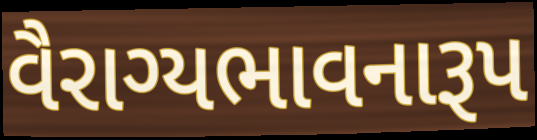
વૈરાગ્યભાવનારૂપ